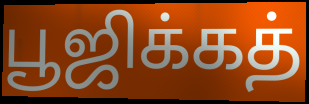
பூஜிக்கத்